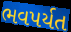
ભવપર્યત